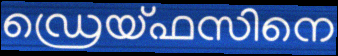
ഡ്രെയ്ഫസിനെ